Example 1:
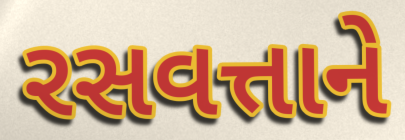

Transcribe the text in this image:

રસવત્તાને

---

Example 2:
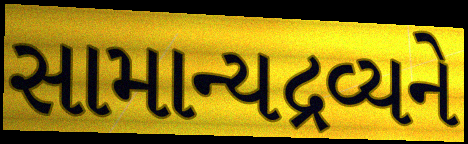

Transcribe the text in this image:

સામાન્યદ્રવ્યને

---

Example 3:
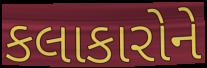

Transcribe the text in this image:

કલાકારોને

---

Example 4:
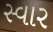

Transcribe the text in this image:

સ્વાર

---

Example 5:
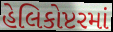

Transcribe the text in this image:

હેલિકોપ્ટરમાં